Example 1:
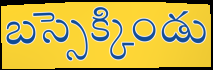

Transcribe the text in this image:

బస్సెక్కిండు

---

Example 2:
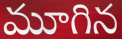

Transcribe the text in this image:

మూగిన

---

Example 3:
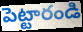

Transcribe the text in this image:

పెట్టారండి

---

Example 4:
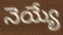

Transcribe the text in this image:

నెయ్యే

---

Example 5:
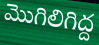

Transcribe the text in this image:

మొగిలిగిద్ద